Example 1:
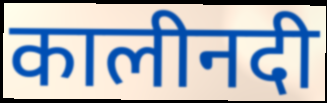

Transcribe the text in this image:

कालीनदी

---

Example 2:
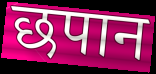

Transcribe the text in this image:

छपान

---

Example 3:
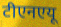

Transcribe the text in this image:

टीएनएयू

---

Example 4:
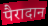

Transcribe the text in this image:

पैरादान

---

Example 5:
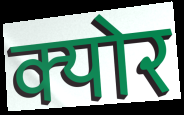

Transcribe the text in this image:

क्योर